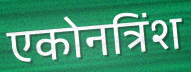
एकोनत्रिंश